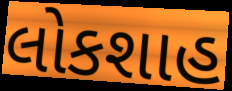
લોકશાહ